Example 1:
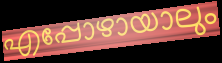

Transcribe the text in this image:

എപ്പോഴായാലും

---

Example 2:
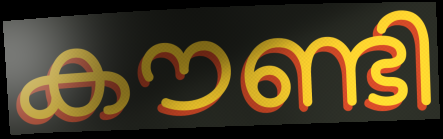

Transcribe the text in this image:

കൗണ്ടി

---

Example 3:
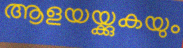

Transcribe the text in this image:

ആളയയ്ക്കുകയും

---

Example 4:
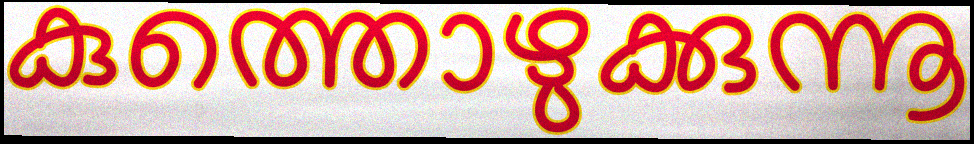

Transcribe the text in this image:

കുത്തൊഴുക്കുന്നൂ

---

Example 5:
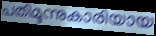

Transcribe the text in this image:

പതിമൂന്നുകാരിയായ